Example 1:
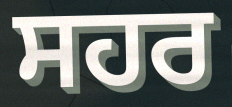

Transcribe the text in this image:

ਸਹਰ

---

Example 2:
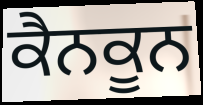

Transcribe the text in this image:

ਕੈਨਕੂਨ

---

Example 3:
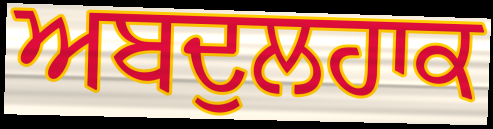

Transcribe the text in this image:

ਅਬਦੁਲਹਾਕ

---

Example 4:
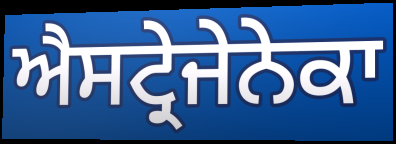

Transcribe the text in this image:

ਐਸਟ੍ਰੇਜੇਨੇਕਾ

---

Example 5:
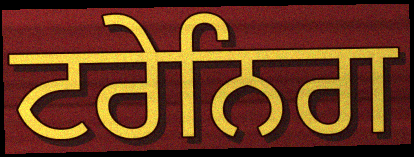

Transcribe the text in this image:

ਟਰੇਨਿਗ